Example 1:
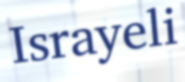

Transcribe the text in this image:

Israyeli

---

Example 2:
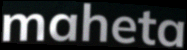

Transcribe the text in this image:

maheta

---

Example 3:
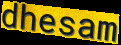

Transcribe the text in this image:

dhesam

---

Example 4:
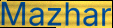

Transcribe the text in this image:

Mazhar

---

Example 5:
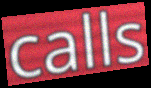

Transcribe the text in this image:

calls